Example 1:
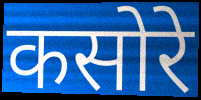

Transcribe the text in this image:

कसोरे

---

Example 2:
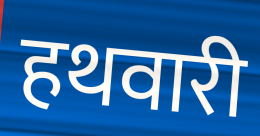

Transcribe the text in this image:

हथवारी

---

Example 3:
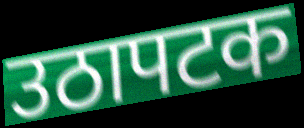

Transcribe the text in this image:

उठापटक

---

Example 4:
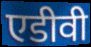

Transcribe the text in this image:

एडीवी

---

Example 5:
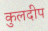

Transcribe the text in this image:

कुलदीप